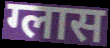
ग्लास